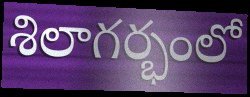
శిలాగర్భంలో